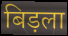
बिड़ला